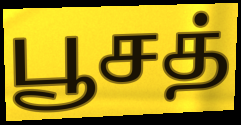
பூசத்